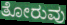
ತೋರುವು